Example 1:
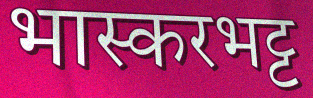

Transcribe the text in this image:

भास्करभट्ट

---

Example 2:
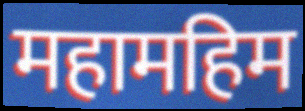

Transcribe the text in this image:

महामहिम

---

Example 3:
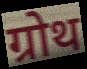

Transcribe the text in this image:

ग्रोथ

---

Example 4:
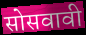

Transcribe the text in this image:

सोसवावी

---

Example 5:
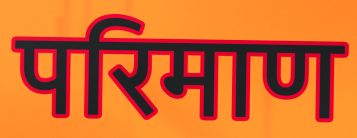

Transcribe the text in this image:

परिमाण